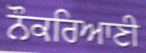
ਨੌਕਰਿਆਣੀ